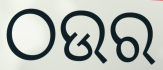
ଠଉର